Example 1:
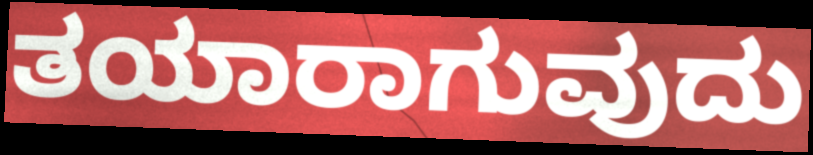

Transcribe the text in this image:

ತಯಾರಾಗುವುದು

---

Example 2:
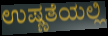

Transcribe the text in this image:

ಉಷ್ಣತೆಯಲ್ಲಿ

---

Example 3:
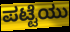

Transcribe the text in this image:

ಪಟ್ಟೆಯು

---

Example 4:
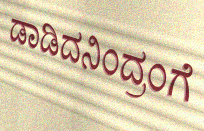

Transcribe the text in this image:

ಡಾಡಿದನಿಂದ್ರಂಗೆ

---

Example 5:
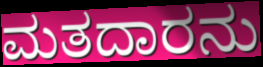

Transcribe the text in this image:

ಮತದಾರನು